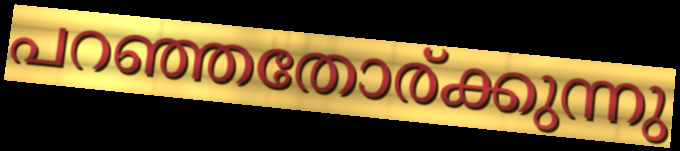
പറഞ്ഞതോര്ക്കുന്നു